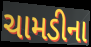
ચામડીના